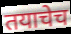
तयाचेच